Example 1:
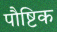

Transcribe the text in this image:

पौष्टिक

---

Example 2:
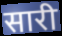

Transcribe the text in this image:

सारी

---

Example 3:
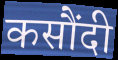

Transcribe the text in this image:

कसौंदी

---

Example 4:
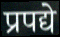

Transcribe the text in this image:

प्रपद्ये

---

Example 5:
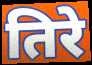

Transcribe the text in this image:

तिरे